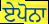
ਏਪੋਨਾ